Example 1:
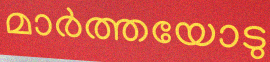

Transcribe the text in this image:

മാർത്തയോടു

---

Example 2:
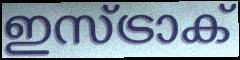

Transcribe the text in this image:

ഇസ്ട്രാക്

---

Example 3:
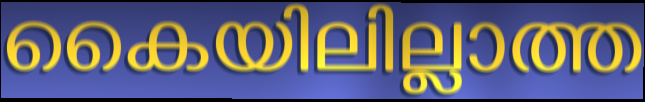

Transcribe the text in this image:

കൈയിലില്ലാത്ത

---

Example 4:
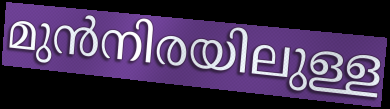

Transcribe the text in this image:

മുൻനിരയിലുള്ള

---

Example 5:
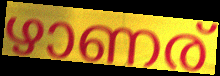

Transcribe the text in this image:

ഴാണര്